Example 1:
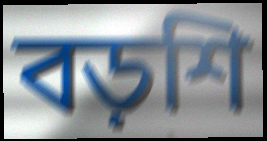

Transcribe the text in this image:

বড়শি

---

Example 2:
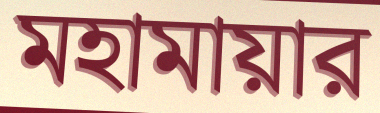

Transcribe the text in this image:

মহামায়ার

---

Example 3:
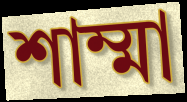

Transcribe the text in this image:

শাম্মা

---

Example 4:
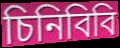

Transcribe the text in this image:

চিনিবিবি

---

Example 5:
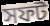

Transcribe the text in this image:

সফট